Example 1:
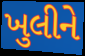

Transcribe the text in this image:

ખુલીને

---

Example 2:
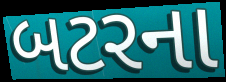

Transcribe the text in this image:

બટરના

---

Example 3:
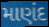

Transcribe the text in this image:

માણંદ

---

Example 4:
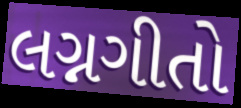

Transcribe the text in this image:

લગ્નગીતો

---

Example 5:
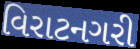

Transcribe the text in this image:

વિરાટનગરી